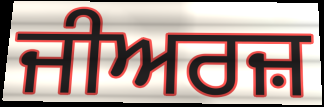
ਜੀਅਰਜ਼